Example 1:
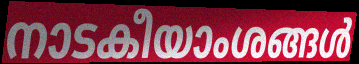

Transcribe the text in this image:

നാടകീയാംശങ്ങൾ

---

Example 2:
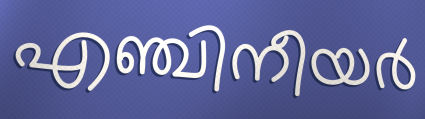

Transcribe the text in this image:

എഞ്ചിനീയർ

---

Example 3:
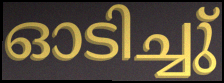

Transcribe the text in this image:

ഓടിച്ചു്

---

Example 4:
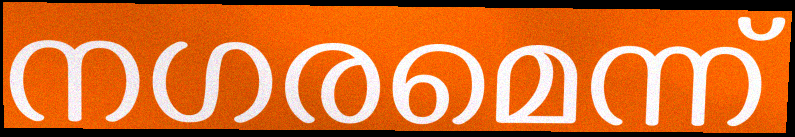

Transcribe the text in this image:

നഗരമെന്ന്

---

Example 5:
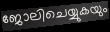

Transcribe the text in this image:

ജോലിചെയ്യുകയും